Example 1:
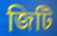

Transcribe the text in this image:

জিটি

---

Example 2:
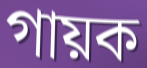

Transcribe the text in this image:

গায়ক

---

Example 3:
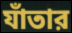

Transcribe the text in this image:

যাঁতার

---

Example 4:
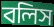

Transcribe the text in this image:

বলিস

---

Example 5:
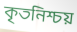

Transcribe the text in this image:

কৃতনিশ্চয়